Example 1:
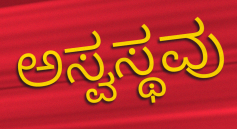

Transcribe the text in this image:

ಅಸ್ವಸ್ಥವು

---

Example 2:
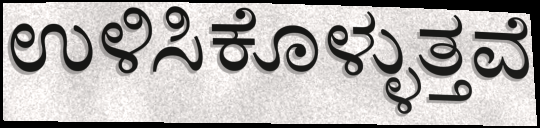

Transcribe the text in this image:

ಉಳಿಸಿಕೊಳ್ಳುತ್ತವೆ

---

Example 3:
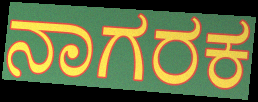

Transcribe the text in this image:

ನಾಗರಕ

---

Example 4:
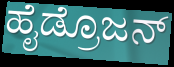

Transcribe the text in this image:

ಹೈಡ್ರೊಜನ್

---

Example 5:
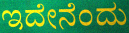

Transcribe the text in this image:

ಇದೇನೆಂದು